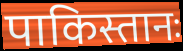
पाकिस्तानः